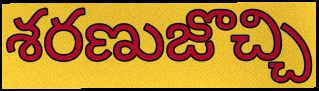
శరణుజొచ్చి